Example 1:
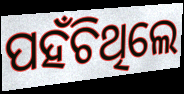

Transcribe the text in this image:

ପହଁଚିଥିଲେ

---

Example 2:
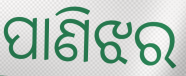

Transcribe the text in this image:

ପାଣିଝର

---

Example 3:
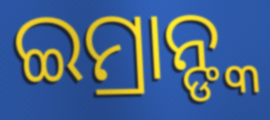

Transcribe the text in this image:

ଇମ୍ରାନ୍ଙ୍କ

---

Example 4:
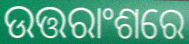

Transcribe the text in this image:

ଉତ୍ତରାଂଶରେ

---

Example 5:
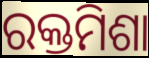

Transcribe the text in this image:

ରକ୍ତମିଶା